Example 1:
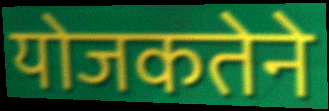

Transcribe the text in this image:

योजकतेने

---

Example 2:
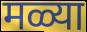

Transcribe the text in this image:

मळ्या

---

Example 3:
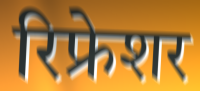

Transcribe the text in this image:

रिफ्रेशर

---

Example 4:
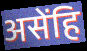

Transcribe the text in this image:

असेंहि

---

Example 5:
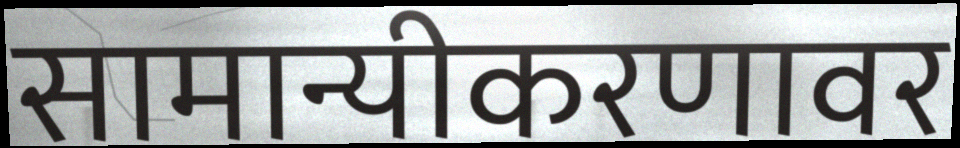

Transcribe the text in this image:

सामान्यीकरणावर